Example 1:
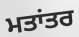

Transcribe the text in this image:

ਮਤਾਂਤਰ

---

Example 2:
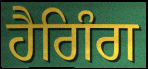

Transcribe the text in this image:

ਹੈਗਿੰਗ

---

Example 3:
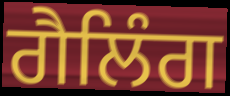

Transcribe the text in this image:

ਗੈਲਿੰਗ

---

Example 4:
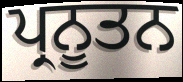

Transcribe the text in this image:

ਪ੍ਰਨੂਤਨ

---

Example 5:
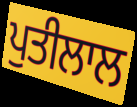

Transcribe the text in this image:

ਪੁਤੀਲਾਲ